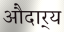
औदार्य